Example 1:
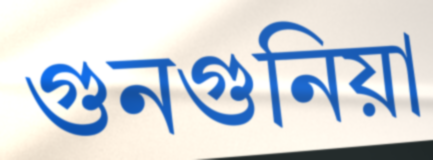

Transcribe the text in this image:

গুনগুনিয়া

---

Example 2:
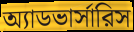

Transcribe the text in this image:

অ্যাডভার্সারিস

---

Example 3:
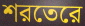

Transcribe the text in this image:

শরতেরে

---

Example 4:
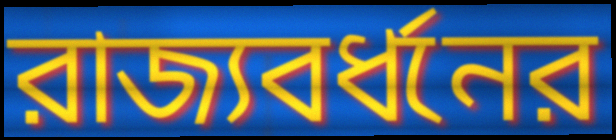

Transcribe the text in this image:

রাজ্যবর্ধনের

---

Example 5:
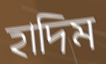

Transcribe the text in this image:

হাদিম